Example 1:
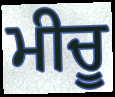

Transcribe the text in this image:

ਮੀਚੂ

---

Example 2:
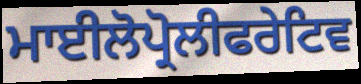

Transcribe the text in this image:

ਮਾਈਲੋਪ੍ਰੋਲੀਫਰੇਟਿਵ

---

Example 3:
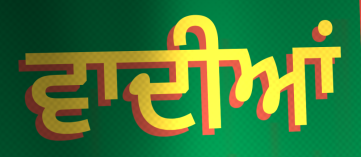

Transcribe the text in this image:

ਵਾਦੀਆਂ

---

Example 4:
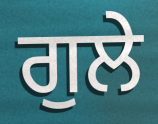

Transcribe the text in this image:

ਗੁਲੇ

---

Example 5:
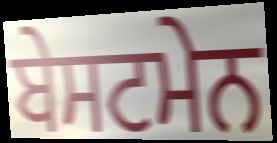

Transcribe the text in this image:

ਬੇਸਟਮੇਨ